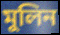
মুলিন